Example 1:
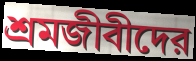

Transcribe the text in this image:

শ্রমজীবীদের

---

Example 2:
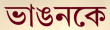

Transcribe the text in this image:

ভাঙনকে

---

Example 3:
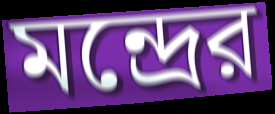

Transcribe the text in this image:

মন্দ্রের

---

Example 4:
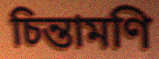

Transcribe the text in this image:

চিন্তামণি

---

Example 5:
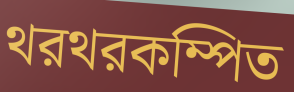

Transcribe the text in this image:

থরথরকম্পিত